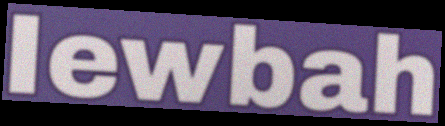
Iewbah